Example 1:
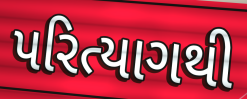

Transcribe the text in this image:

પરિત્યાગથી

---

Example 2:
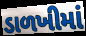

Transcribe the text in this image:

ડાળખીમાં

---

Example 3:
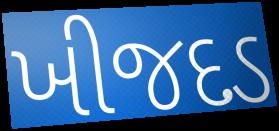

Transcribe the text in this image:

ખીજદડ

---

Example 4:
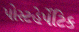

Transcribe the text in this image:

પોસ્ટહેર્પેટિક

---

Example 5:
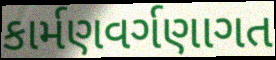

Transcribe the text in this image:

કાર્મણવર્ગણાગત